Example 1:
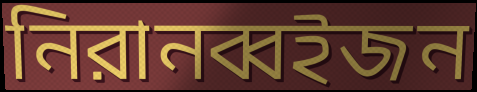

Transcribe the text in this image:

নিরানব্বইজন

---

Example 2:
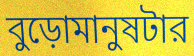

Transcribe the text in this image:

বুড়োমানুষটার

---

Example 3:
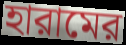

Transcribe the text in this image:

হারামের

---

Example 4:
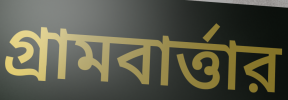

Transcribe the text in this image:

গ্রামবার্ত্তার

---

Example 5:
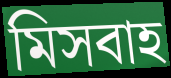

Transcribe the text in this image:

মিসবাহ